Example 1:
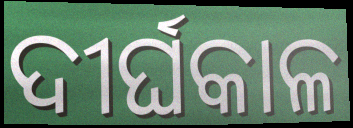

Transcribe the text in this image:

ଦୀର୍ଘକାଳ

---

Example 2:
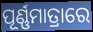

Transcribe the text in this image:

ପୂର୍ଣ୍ଣମାତ୍ରାରେ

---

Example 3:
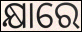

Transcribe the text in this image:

କ୍ଷାରେ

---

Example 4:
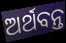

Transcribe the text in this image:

ଅର୍ଥବନ୍ତ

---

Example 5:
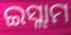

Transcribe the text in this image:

ଇସ୍ଲାମ